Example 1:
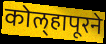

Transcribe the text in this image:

कोल्हापूरने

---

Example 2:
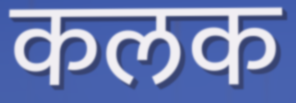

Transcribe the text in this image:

कलक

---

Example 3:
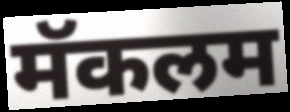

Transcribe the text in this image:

मॅकलम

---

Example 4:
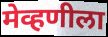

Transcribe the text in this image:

मेव्हणीला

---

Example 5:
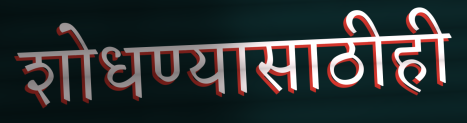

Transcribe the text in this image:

शोधण्यासाठीही